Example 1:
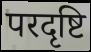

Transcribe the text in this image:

परदृष्टि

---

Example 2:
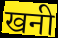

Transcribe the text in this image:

खनी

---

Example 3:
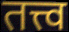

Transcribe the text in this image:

तत्त्व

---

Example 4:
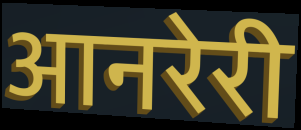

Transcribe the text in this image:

आनरेरी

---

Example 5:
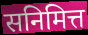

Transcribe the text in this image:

सनिमित्त